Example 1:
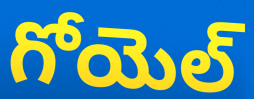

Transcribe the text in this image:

గోయెల్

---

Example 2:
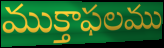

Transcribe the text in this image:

ముక్తాఫలము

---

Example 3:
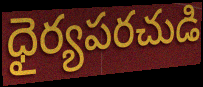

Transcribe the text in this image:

ధైర్యపరచుడి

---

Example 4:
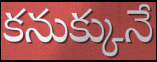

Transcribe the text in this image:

కనుక్కునే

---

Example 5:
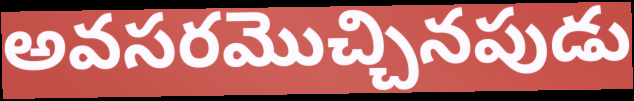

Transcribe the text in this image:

అవసరమొచ్చినపుడు